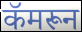
कॅमरून